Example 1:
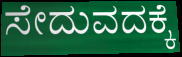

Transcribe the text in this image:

ಸೇದುವದಕ್ಕೆ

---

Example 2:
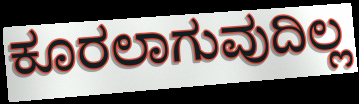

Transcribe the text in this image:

ಕೂರಲಾಗುವುದಿಲ್ಲ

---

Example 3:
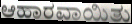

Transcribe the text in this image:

ಆಹಾರವಾಯಿತು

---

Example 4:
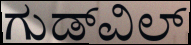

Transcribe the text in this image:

ಗುಡ್‌ವಿಲ್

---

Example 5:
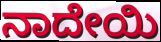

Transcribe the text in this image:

ನಾದೇಯಿ